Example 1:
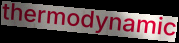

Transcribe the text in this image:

thermodynamic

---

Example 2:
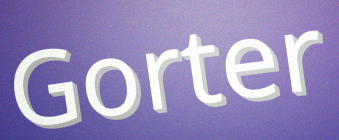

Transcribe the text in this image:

Gorter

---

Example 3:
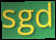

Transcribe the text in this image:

sgd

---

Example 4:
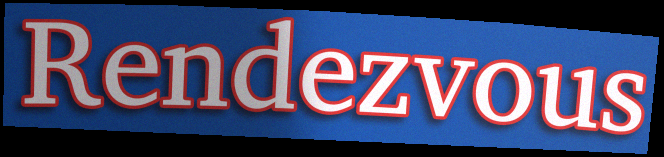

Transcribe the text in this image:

Rendezvous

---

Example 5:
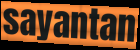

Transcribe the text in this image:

sayantan